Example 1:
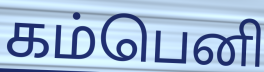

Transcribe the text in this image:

கம்பெனி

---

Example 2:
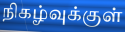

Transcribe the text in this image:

நிகழ்வுக்குள்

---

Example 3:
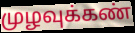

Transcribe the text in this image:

முழவுக்கண்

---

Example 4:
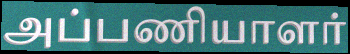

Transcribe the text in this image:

அப்பணியாளர்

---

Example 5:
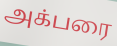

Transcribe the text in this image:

அக்பரை